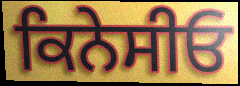
ਕਿਨੇਸੀਓ